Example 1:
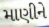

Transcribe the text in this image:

માણીને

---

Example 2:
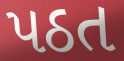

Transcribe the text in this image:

પઠત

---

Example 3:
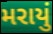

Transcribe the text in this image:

મરાયું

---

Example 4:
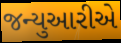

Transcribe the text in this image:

જન્યુઆરીએ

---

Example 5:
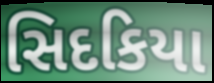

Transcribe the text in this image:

સિદકિયા